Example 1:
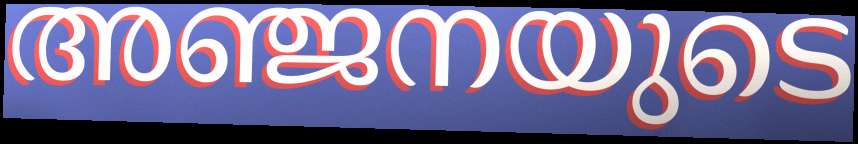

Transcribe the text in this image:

അഞ്ജനയുടെ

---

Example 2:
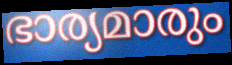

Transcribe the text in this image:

ഭാര്യമാരും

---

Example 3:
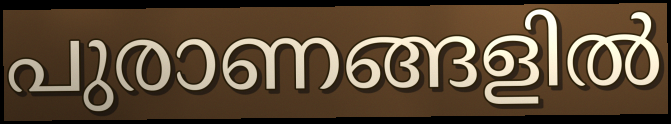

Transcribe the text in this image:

പുരാണങ്ങളിൽ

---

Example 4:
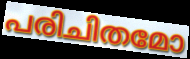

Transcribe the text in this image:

പരിചിതമോ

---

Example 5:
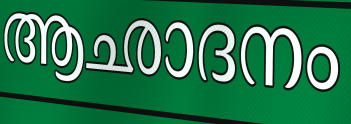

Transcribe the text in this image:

ആഛാദനം